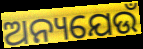
ଅନ୍ୟଯେଉଁ